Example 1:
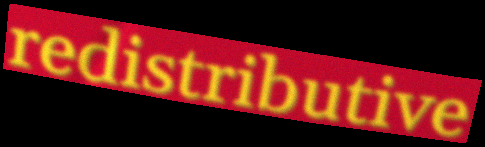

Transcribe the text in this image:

redistributive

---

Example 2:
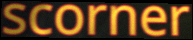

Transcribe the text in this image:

scorner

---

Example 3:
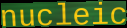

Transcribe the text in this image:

nucleic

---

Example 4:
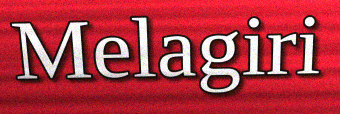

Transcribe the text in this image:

Melagiri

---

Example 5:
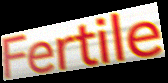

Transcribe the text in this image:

Fertile